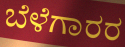
ಬೆಳೆಗಾರರ